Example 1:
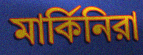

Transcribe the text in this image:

মার্কিনিরা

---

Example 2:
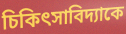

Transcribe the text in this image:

চিকিৎসাবিদ্যাকে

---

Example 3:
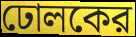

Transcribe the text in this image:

ঢোলকের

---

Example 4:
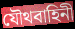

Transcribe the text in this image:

যৌথবাহিনী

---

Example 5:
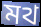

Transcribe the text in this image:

মথ